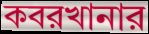
কবরখানার